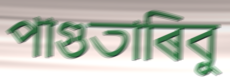
পাগুতাৰিবু